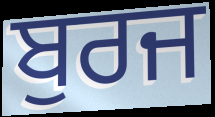
ਬੁਰਜ